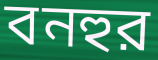
বনহুর